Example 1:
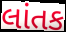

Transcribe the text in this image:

લાંતક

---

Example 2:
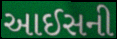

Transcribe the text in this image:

આઈસની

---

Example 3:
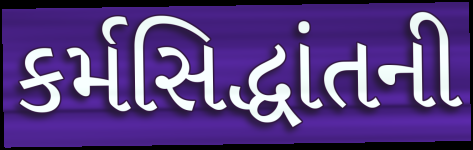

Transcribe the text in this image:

કર્મસિદ્ધાંતની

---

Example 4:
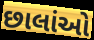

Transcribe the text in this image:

છાલાંઓ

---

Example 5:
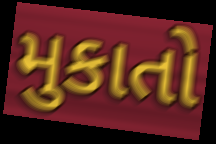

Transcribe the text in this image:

મુકાતો